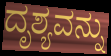
ದೃಶ್ಯವನ್ನು